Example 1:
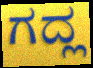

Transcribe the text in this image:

ಗದ್ಲ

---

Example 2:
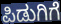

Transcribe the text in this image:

ಪಿಡುಗಿಗೆ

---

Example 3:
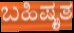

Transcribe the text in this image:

ಬಹಿಷ್ಕೃತ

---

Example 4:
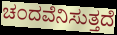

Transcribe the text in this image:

ಚಂದವೆನಿಸುತ್ತದೆ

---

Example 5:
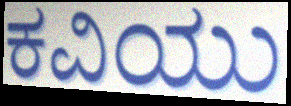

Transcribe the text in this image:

ಕವಿಯು